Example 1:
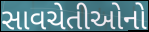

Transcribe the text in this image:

સાવચેતીઓનો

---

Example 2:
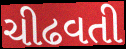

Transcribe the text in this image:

ચીઢવતી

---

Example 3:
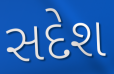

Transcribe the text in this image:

સદેશ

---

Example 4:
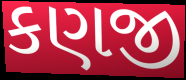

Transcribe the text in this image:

કણજી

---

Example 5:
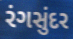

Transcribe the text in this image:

રંગસુંદર